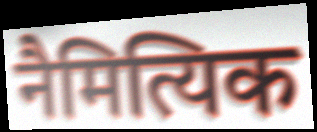
नैमित्यिक